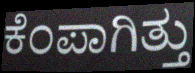
ಕೆಂಪಾಗಿತ್ತು